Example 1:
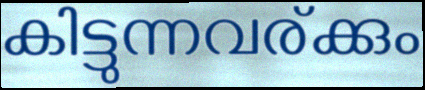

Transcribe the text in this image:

കിട്ടുന്നവര്ക്കും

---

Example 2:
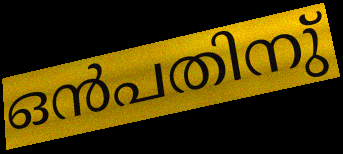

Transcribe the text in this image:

ഒൻപതിനു്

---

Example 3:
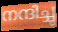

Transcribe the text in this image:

നന്ദിച്ചു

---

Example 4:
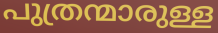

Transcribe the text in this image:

പുത്രന്മാരുള്ള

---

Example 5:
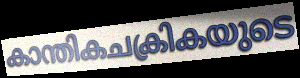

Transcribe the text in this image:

കാന്തികചക്രികയുടെ